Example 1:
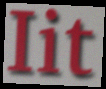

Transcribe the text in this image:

Iit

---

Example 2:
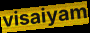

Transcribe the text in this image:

visaiyam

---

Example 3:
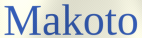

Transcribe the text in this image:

Makoto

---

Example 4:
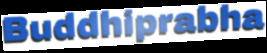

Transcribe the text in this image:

Buddhiprabha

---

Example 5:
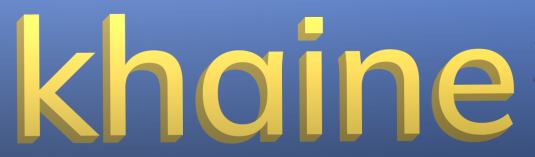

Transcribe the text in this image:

khaine